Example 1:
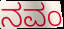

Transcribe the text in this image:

ನವಂ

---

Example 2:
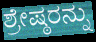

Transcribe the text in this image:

ಶ್ರೇಷ್ಠರನ್ನು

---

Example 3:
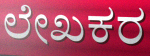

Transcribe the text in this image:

ಲೇಖಕರ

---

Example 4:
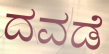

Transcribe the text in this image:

ದವಡೆ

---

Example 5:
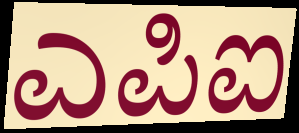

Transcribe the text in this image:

ಎಪಿಐ